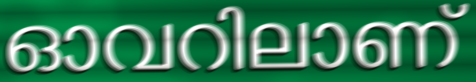
ഓവറിലാണ്